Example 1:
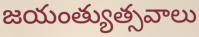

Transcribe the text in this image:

జయంత్యుత్సవాలు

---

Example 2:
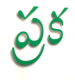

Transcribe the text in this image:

ప్రక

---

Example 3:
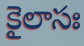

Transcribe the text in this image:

కైలాసః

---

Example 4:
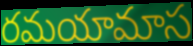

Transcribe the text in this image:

రమయామాస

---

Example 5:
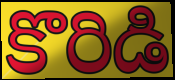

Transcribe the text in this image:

కొరిడి